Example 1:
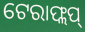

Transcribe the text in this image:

ଟେରାଫ୍ଲପ୍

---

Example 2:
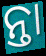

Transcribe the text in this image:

ନ୍ତା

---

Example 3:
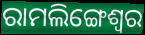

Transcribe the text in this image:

ରାମଲିଙ୍ଗେଶ୍ୱର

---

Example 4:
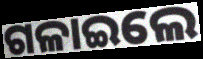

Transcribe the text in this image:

ଗଳାଇଲେ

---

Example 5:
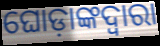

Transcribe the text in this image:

ଘୋଡ଼ାଙ୍କଦ୍ୱାରା